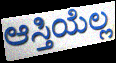
ಆಸ್ತಿಯೆಲ್ಲ